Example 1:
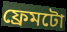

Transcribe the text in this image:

ফ্ৰেমটো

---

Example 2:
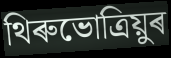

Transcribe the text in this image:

থিৰুভোত্ৰিয়ুৰ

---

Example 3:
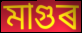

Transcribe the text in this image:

মাগুৰ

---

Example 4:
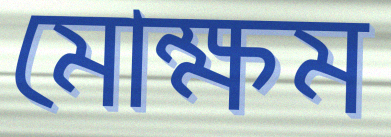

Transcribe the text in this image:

মোক্ষম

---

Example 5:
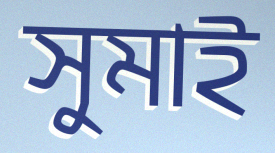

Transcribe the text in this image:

সুমাই